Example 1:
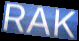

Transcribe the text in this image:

RAK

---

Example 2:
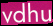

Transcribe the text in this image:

vdhu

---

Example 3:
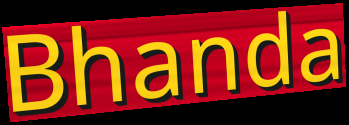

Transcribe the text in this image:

Bhanda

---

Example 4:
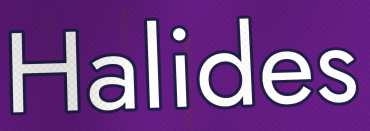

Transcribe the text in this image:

Halides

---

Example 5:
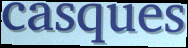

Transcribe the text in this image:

casques